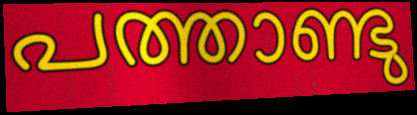
പത്താണ്ടു